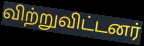
விற்றுவிட்டனர்